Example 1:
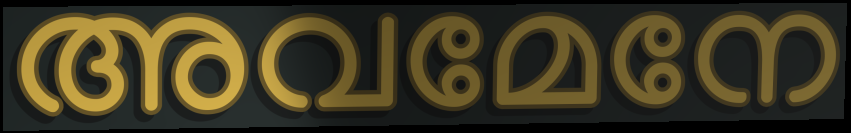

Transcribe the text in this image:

അവമേനേ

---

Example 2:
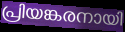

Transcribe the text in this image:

പ്രിയങ്കരനായി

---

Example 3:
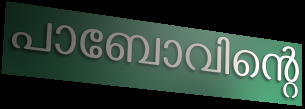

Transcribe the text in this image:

പാബോവിന്റെ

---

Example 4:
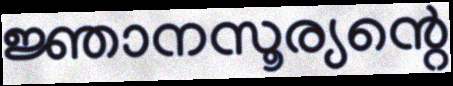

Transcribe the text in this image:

ജ്ഞാനസൂര്യന്റെ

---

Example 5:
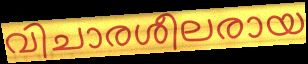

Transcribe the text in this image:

വിചാരശീലരായ